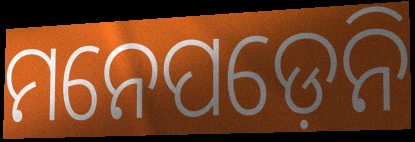
ମନେପଡ଼େନି